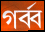
গর্ব্ব